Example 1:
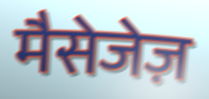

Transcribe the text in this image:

मैसेजेज़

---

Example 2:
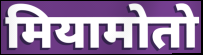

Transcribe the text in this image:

मियामोतो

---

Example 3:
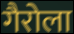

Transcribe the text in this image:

गैरोला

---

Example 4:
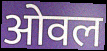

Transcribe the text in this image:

ओवल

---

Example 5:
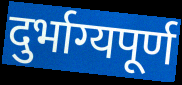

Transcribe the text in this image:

दुर्भाग्यपूर्ण